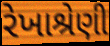
રેખાશ્રેણી